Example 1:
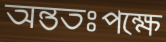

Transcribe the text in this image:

অন্ততঃপক্ষে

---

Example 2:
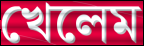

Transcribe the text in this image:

খেলেম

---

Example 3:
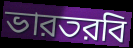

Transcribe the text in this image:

ভারতরবি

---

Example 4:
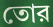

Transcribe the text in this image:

তোর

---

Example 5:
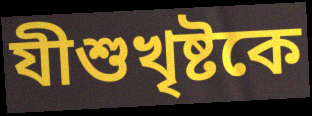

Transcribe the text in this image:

যীশুখৃষ্টকে